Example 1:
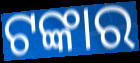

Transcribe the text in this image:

ଟଙ୍କାର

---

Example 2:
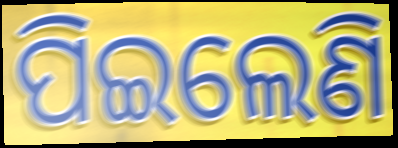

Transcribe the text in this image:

ପିଇଲେଣି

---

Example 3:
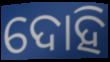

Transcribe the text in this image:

ଦୋହି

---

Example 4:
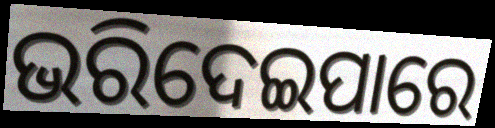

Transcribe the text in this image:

ଭରିଦେଇପାରେ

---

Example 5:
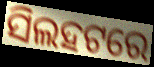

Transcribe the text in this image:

ସିଲହଟରେ